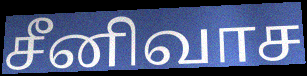
சீனிவாச